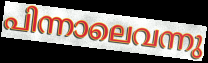
പിന്നാലെവന്നു